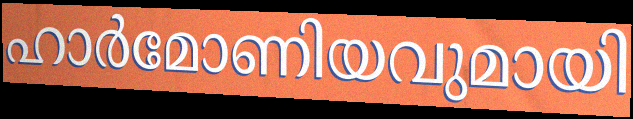
ഹാർമോണിയവുമായി